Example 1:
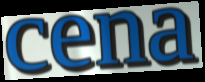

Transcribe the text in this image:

cena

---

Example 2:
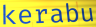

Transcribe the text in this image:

kerabu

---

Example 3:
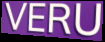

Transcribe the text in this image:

VERU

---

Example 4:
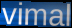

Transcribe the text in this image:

vimal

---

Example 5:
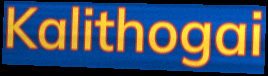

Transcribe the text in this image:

Kalithogai